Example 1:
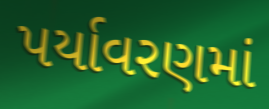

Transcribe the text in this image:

પર્યાવરણમાં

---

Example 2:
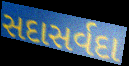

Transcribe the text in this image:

સદાસર્વદા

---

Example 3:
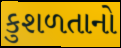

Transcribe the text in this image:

કુશળતાનો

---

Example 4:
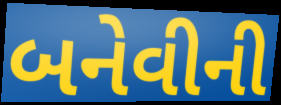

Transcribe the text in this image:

બનેવીની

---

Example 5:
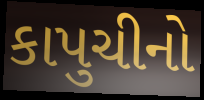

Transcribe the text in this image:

કાપુચીનો